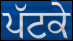
ਪੱਟਕੇ